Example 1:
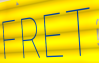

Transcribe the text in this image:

FRET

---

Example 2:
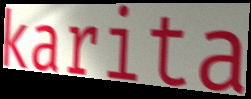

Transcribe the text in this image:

karita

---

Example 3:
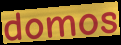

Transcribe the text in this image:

domos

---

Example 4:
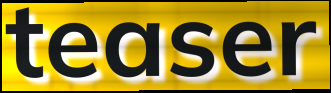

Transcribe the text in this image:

teaser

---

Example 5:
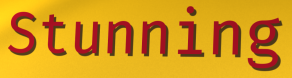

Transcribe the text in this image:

Stunning